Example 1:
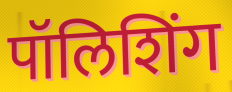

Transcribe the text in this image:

पॉलिशिंग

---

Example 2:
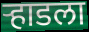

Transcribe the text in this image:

ऱ्हाडला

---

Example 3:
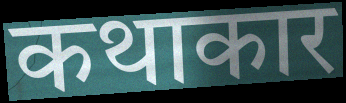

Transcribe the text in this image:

कथाकार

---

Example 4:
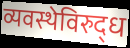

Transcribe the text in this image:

व्यवस्थेविरुद्ध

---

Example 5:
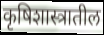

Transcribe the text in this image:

कृषिशास्त्रातील